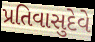
પ્રતિવાસુદેવે